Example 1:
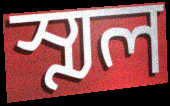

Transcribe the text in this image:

স্মল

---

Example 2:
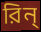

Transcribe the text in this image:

রিন্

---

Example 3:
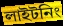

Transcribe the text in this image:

লাইটনিং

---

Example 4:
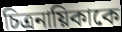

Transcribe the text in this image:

চিত্রনায়িকাকে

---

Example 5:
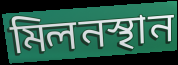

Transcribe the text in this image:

মিলনস্থান